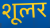
शूलर